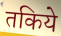
तकिये